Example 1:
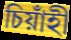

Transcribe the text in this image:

চিয়াঁহী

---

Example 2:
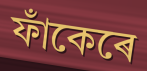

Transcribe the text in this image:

ফাঁকেৰে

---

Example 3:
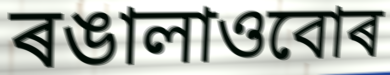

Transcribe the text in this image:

ৰঙালাওবোৰ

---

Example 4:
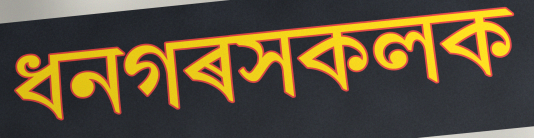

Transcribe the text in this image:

ধনগৰসকলক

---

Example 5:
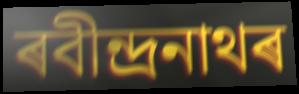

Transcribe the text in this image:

ৰবীন্দ্ৰনাথৰ